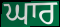
ਘਾਰ